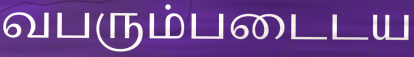
வபரும்படைடய